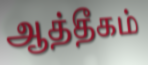
ஆத்தீகம்